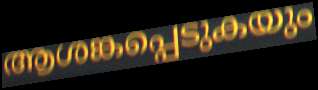
ആശങ്കപ്പെടുകയും